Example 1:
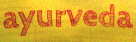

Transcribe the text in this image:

ayurveda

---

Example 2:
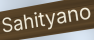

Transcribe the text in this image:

Sahityano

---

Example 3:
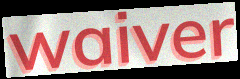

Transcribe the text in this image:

waiver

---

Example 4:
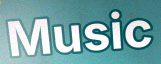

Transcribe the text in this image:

Music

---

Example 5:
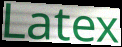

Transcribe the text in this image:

Latex